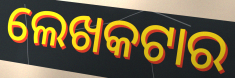
ଲେଖକଟାର